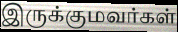
இருக்குமவர்கள்